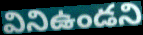
వినిఉండని